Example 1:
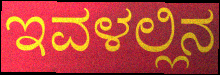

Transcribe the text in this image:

ಇವಳಲ್ಲಿನ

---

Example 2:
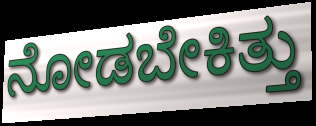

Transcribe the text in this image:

ನೋಡಬೇಕಿತ್ತು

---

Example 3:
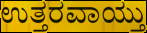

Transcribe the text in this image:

ಉತ್ತರವಾಯ್ತು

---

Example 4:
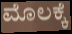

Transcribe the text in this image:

ಮೊಲಕ್ಕೆ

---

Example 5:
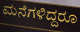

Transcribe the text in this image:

ಮನೆಗಳಿದ್ದರೂ